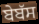
ਬੇਬੱਸ